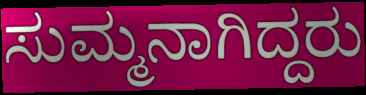
ಸುಮ್ಮನಾಗಿದ್ದರು